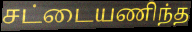
சட்டையணிந்த